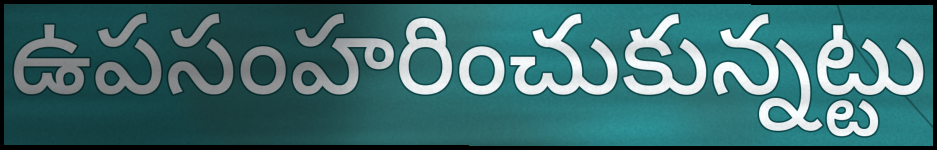
ఉపసంహరించుకున్నట్టు